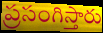
ప్రసంగిస్తారు